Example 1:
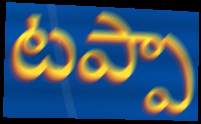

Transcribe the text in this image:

టప్పా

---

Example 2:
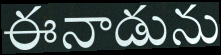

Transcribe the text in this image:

ఈనాడును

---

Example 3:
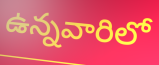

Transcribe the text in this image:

ఉన్నవారిలో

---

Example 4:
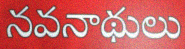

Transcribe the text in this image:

నవనాథులు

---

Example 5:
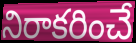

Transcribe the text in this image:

నిరాకరించే